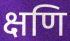
क्षणि